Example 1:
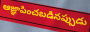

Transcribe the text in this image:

ఆజ్ఞాపించబడినప్పుడు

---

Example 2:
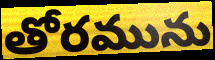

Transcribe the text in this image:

తోరమును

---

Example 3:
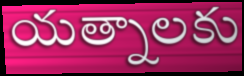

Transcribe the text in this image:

యత్నాలకు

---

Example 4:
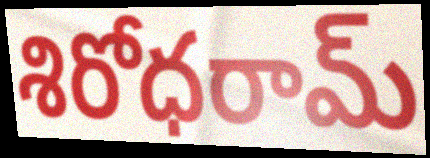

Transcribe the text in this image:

శిరోధరామ్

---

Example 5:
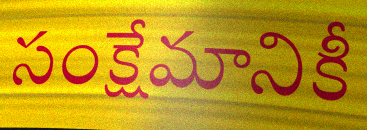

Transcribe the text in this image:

సంక్షేమానికీ